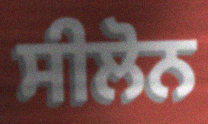
ਸੀਲੋਨ